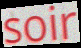
soir